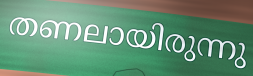
തണലായിരുന്നു